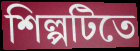
শিল্পটিতে